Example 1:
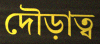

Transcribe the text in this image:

দৌড়াত্ব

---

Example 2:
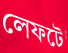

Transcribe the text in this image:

লেফটে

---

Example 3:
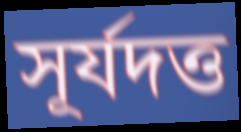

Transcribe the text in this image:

সূর্যদত্ত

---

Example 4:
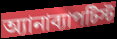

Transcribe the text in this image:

অ্যানাব্যাপটিস্ট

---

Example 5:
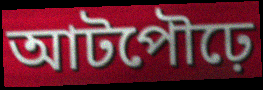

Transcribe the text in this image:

আটপৌঢ়ে